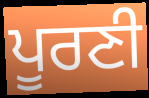
ਪੂਰਣੀ